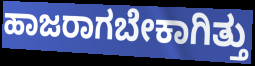
ಹಾಜರಾಗಬೇಕಾಗಿತ್ತು